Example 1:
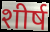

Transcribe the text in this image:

शीर्ष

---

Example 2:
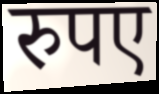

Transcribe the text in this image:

रुपए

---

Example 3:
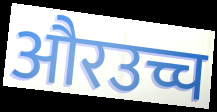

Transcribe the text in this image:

औरउच्च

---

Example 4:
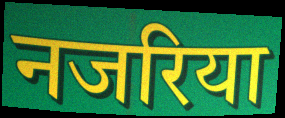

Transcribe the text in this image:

नजरिया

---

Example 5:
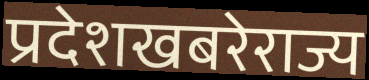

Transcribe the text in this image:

प्रदेशखबरेराज्य